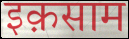
इक़साम